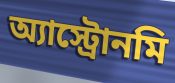
অ্যাস্ট্রোনমি